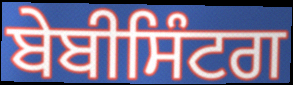
ਬੇਬੀਸਿੰਟਗ